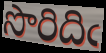
సొరిదిఁ